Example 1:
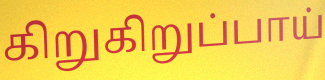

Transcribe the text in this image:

கிறுகிறுப்பாய்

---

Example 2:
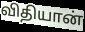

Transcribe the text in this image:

விதியான்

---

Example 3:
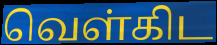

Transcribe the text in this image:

வெள்கிட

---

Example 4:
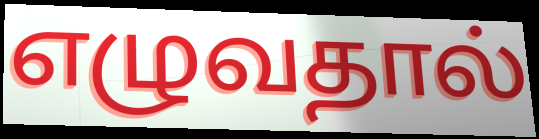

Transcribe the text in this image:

எழுவதால்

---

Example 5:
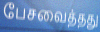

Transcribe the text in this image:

பேசவைத்தது